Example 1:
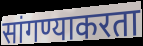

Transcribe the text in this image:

सांगण्याकरता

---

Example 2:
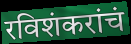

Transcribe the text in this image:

रविशंकरांचं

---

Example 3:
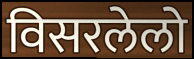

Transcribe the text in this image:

विसरलेलो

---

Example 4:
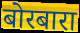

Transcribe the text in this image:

बोरबारा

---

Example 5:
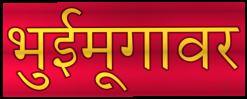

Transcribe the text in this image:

भुईमूगावर